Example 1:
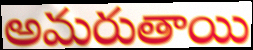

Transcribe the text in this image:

అమరుతాయి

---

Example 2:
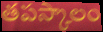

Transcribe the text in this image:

తపస్కాలం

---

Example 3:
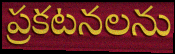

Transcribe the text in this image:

ప్రకటనలను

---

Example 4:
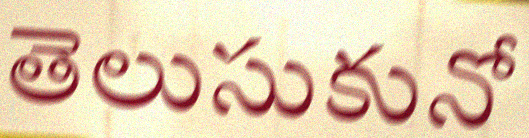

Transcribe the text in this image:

తెలుసుకునో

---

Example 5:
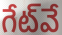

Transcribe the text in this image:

గేట్‌వే